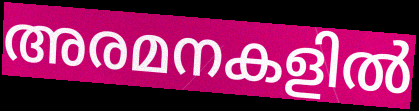
അരമനകളിൽ